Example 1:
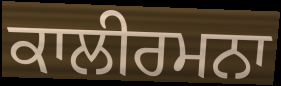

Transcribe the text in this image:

ਕਾਲੀਰਮਨਾ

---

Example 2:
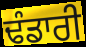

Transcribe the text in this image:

ਢੰਡਾਰੀ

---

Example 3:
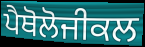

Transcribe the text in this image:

ਪੈਥੋਲੋਜੀਕਲ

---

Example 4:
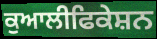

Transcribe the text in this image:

ਕੁਆਲੀਫਿਕੇਸ਼ਨ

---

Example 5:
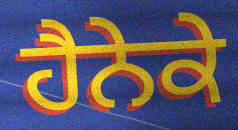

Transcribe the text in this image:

ਹੈਨੇਕੇ